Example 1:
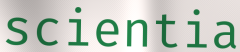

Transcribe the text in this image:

scientia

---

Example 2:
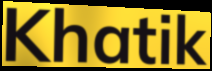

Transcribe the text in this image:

Khatik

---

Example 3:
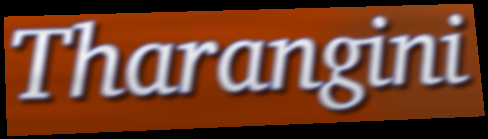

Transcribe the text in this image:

Tharangini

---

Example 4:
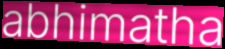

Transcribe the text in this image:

abhimatha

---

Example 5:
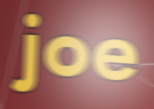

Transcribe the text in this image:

joe